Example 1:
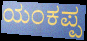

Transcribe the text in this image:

ಯಂಕಪ್ಪ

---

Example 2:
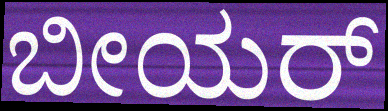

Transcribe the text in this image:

ಬೀಯರ್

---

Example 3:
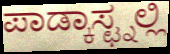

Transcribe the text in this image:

ಪಾಡ್ಕಾಸ್ಟ್ನಲ್ಲಿ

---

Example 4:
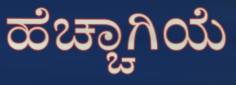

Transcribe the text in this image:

ಹೆಚ್ಚಾಗಿಯೆ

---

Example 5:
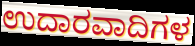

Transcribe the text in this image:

ಉದಾರವಾದಿಗಳ